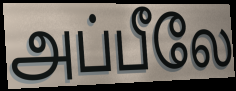
அப்பீலே